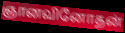
ஞானவினோதன்